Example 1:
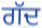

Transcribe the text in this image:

ਗੱਦ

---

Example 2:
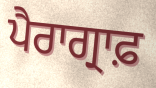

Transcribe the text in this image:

ਪੈਰਾਗ੍ਰਾਫ਼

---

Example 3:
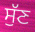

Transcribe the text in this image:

ਸੁੱਣ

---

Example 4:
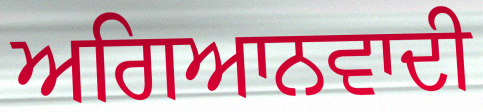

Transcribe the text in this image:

ਅਗਿਆਨਵਾਦੀ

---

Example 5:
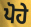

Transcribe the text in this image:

ਪੋਹੇ